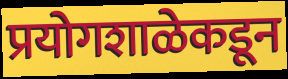
प्रयोगशाळेकडून